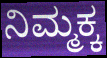
ನಿಮ್ಮಕ್ಕ